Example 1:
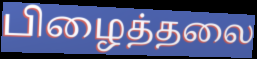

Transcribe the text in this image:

பிழைத்தலை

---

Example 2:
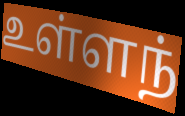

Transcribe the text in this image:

உள்ளந்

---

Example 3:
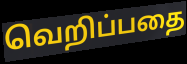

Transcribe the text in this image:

வெறிப்பதை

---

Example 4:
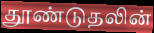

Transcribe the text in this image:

தூண்டுதலின்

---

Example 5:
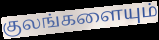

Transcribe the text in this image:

குலங்களையும்